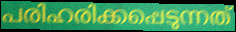
പരിഹരിക്കപ്പെടുന്നത്